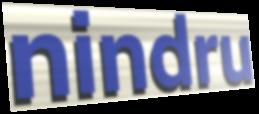
nindru